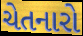
ચેતનારો